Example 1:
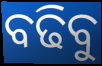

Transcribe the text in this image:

ବଢିବୁ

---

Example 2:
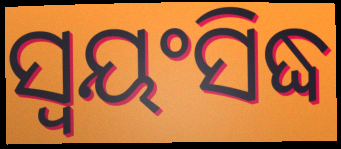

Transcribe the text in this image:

ସ୍ୱୟଂସିଦ୍ଧ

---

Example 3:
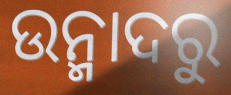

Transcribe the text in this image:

ଉନ୍ମାଦରୁ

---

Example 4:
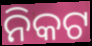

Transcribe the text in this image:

ନିକଟ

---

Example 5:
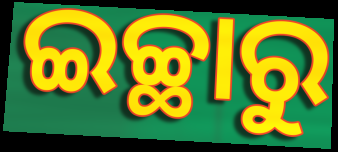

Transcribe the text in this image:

ଇଚ୍ଛାରୁ